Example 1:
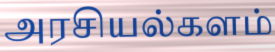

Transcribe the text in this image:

அரசியல்களம்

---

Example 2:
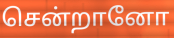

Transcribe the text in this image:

சென்றானோ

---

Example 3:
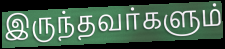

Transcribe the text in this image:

இருந்தவர்களும்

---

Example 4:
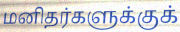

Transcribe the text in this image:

மனிதர்களுக்குக்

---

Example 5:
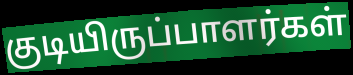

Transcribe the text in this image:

குடியிருப்பாளர்கள்